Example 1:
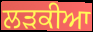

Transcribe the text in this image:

ਲੜਕੀਆ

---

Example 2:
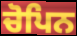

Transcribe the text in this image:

ਚੋਪਿਨ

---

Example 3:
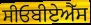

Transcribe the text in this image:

ਸੀਓਬੀਏਐੱਸ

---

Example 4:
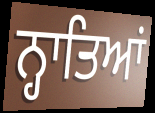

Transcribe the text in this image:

ਨ੍ਹਾਤਿਆਂ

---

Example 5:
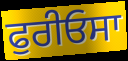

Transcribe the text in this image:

ਫੁਰੀਓਸਾ